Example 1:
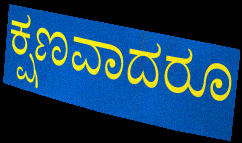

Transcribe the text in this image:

ಕ್ಷಣವಾದರೂ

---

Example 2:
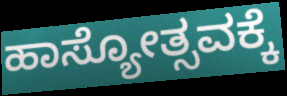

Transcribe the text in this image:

ಹಾಸ್ಯೋತ್ಸವಕ್ಕೆ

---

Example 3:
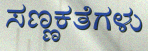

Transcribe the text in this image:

ಸಣ್ಣಕತೆಗಳು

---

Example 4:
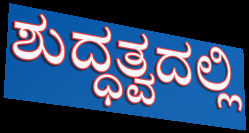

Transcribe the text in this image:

ಶುದ್ಧತ್ವದಲ್ಲಿ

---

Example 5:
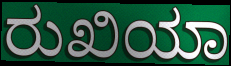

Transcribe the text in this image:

ರುಖಿಯಾ